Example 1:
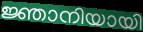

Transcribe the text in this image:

ജ്ഞാനിയായി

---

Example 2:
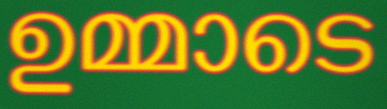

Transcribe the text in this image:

ഉമ്മാടെ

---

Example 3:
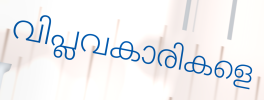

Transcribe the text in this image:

വിപ്ലവകാരികളെ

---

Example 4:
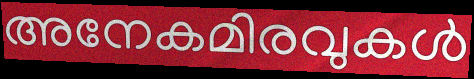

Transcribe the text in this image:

അനേകമിരവുകൾ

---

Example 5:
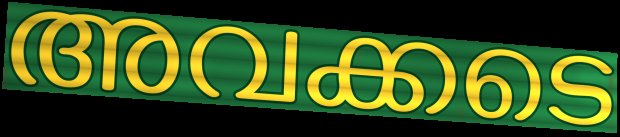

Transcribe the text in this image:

അവക്കടെ